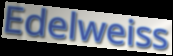
Edelweiss